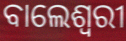
ବାଲେଶ୍ୱରୀ